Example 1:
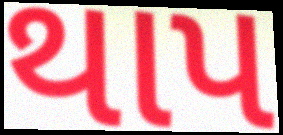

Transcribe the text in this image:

થાપ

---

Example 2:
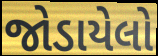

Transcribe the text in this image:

જોડાયેલો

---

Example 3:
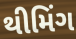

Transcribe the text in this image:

થીમિંગ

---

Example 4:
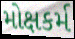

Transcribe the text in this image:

મોક્ષકર્મ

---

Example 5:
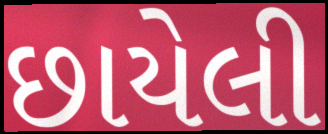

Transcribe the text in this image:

છાયેલી